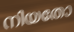
നിയതോ